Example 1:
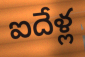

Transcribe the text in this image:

ఐదేళ్ల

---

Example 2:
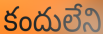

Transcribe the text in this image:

కందులేని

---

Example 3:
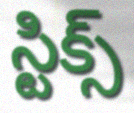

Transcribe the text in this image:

స్టిక్స్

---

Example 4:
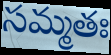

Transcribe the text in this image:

సమ్మతః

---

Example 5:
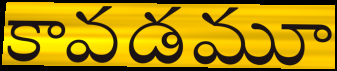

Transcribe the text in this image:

కావడమూ